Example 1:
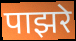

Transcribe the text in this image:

पाझरे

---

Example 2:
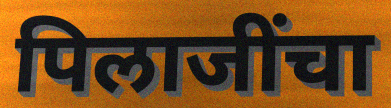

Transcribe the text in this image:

पिलाजींचा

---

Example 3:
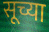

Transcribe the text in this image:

सूच्या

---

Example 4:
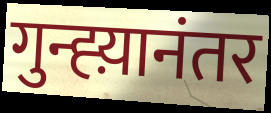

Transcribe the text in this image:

गुन्ह्य़ानंतर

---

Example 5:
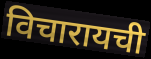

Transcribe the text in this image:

विचारायची